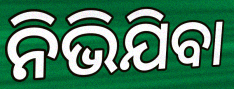
ନିଭିଯିବା